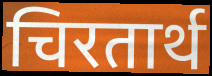
चिरतार्थ